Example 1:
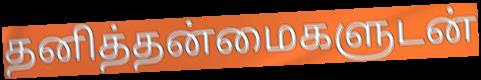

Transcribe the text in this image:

தனித்தன்மைகளுடன்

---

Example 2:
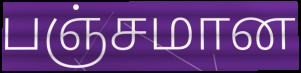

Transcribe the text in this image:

பஞ்சமான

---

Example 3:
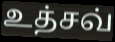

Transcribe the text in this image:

உத்சவ்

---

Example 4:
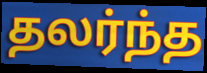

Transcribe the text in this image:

தலர்ந்த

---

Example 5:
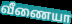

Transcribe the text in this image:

வீணையா